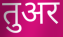
तुअर